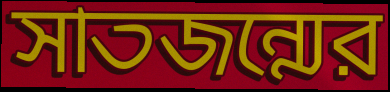
সাতজন্মের